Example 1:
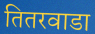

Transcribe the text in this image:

तितरवाडा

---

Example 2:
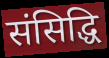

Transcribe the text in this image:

संसिद्धि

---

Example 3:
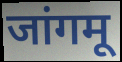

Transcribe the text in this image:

जांगमू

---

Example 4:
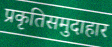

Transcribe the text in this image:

प्रकृतिसमुदाहार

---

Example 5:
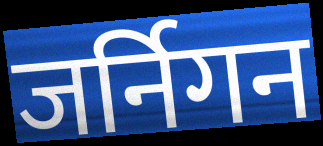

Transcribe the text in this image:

जर्निगन